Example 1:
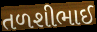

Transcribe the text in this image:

તળશીભાઈ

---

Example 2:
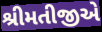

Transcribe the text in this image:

શ્રીમતીજીએ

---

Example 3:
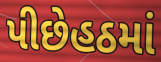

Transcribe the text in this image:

પીછેહઠમાં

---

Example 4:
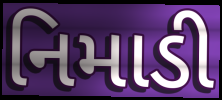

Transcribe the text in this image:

નિમાડી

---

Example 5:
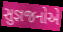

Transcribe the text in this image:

સુજ્ઞજનોએ